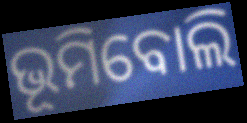
ଭୂମିବୋଲି